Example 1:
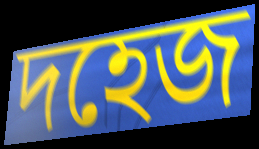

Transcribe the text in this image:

দহেজ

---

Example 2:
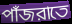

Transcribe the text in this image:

পাঁজরাতে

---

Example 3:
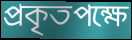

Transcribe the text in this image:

প্রকৃতপক্ষে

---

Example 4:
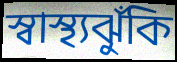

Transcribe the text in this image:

স্বাস্থ্যঝুঁকি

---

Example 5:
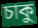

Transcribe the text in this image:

চাকু